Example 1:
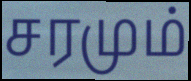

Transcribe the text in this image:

சரமும்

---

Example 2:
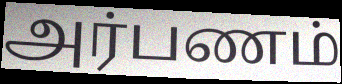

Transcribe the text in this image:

அர்பணம்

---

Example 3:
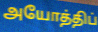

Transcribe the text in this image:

அயோத்திப்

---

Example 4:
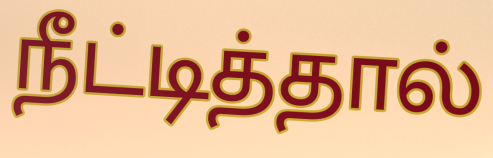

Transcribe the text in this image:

நீட்டித்தால்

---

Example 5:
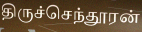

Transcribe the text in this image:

திருச்செந்தூரன்